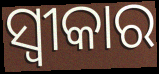
ସ୍ବୀକାର